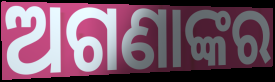
ଅଗଣାଙ୍କର